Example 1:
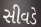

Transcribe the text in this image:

સીવડે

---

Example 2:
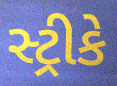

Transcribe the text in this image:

સ્ટ્રીકે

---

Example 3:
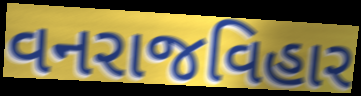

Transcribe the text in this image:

વનરાજવિહાર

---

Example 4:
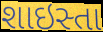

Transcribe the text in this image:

શાઇસ્તા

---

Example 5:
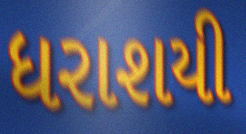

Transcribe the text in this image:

ધરાશયી